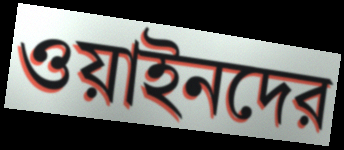
ওয়াইনদের